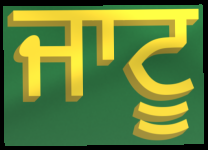
ਜਾਟੂ